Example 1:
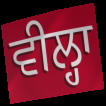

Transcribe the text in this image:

ਵੀਲ੍ਹਾ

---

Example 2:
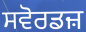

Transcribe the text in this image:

ਸਵੋਰਡਜ਼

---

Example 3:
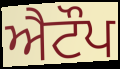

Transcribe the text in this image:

ਐਟੌਪ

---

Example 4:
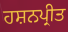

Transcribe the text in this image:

ਹਸ਼ਨਪ੍ਰੀਤ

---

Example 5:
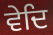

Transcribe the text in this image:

ਵੇਦਿ